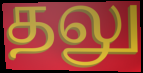
தலு